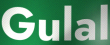
Gulal